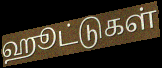
ஹூட்டுகள்